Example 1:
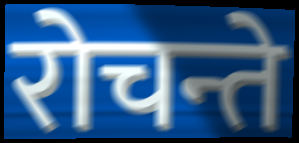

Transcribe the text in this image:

रोचन्ते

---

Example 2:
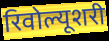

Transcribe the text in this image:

रिवोल्यूशरी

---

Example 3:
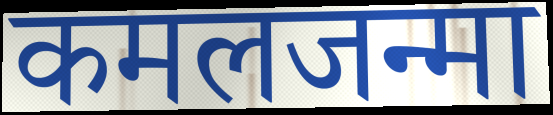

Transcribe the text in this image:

कमलजन्मा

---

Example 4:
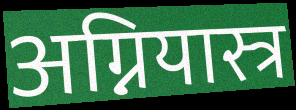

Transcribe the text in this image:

अग्नियास्त्र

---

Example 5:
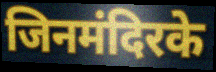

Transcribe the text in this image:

जिनमंदिरके